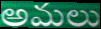
అమలు